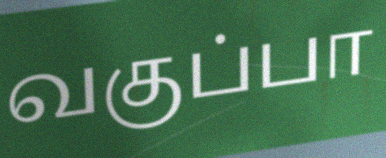
வகுப்பா